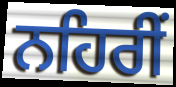
ਨਹਿਰੀਂ